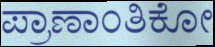
ಪ್ರಾಣಾಂತಿಕೋ